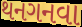
થનગનવા